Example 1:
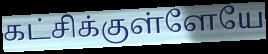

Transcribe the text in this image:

கட்சிக்குள்ளேயே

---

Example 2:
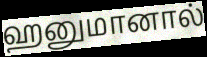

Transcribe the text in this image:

ஹனுமானால்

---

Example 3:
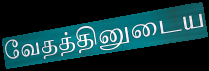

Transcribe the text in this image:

வேதத்தினுடைய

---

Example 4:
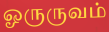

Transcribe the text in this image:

ஓருருவம்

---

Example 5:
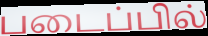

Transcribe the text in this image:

படைப்பில்